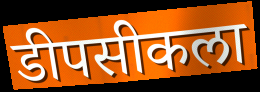
डीपसीकला